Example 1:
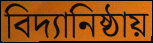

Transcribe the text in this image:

বিদ্যানিষ্ঠায়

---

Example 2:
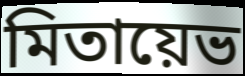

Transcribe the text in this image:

মিতায়েভ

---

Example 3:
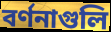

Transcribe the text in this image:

বর্ণনাগুলি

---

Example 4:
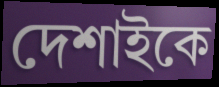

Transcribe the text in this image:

দেশাইকে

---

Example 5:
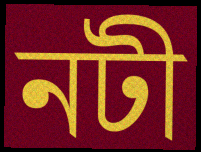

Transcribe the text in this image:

নটী